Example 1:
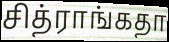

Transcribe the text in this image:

சித்ராங்கதா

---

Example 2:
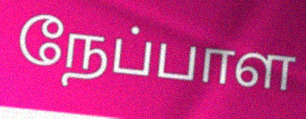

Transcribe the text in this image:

நேப்பாள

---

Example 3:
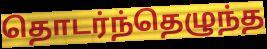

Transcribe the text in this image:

தொடர்ந்தெழுந்த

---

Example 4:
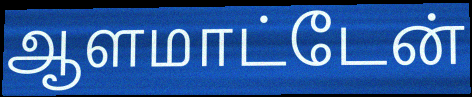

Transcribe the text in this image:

ஆளமாட்டேன்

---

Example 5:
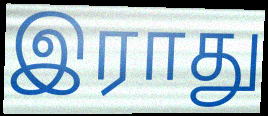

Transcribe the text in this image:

இராது